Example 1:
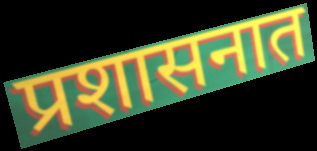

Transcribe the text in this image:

प्रशासनात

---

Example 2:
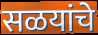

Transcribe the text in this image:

सळयांचे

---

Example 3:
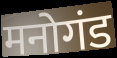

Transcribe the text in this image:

मनोगंड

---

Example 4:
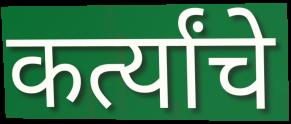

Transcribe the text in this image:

कर्त्यांचे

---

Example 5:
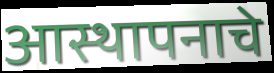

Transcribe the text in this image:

आस्थापनाचे